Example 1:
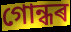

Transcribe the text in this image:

গোন্ধৰ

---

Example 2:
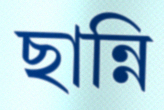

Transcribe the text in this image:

ছান্নি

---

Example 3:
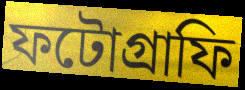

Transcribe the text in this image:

ফটোগ্ৰাফি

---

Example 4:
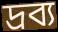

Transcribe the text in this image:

দ্ৰব্য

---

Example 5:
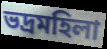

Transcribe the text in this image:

ভদ্ৰমহিলা